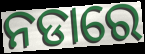
ନଡାରେ